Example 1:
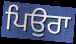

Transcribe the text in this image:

ਪਿਉਰਾ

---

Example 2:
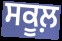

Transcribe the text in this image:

ਸਕੂਲ਼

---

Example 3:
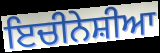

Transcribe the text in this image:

ਇਚੀਨੇਸ਼ੀਆ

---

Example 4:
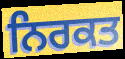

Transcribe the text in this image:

ਨਿਰਕਤ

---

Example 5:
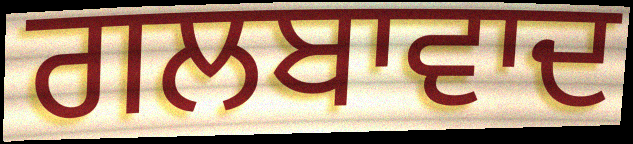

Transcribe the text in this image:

ਗਲਬਾਵਾਦ